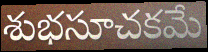
శుభసూచకమే